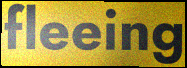
fleeing